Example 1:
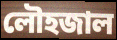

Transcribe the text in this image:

লৌহজাল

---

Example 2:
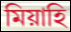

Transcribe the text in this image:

মিয়াহি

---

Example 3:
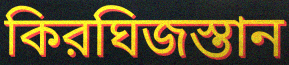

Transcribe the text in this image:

কিরঘিজস্তান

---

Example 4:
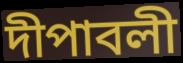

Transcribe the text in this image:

দীপাবলী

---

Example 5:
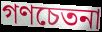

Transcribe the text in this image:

গণচেতনা